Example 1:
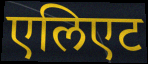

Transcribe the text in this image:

एलिएट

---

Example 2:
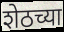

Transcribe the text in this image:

शेठच्या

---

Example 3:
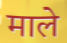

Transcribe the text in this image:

माले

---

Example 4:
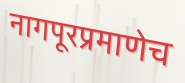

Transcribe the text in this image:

नागपूरप्रमाणेच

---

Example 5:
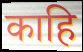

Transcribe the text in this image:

काहि